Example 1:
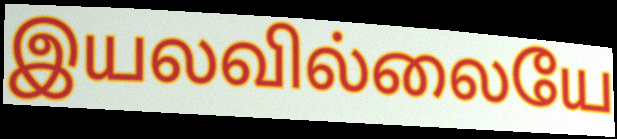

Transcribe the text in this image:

இயலவில்லையே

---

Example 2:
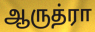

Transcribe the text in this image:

ஆருத்ரா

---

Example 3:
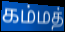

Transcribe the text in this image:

கம்மத்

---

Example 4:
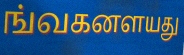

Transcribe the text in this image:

ங்வகனளயது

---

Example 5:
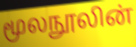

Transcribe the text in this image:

மூலநூலின்